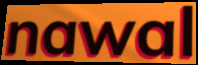
nawal